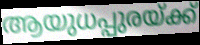
ആയുധപ്പുരയ്ക്ക്